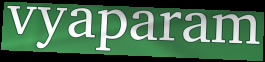
vyaparam